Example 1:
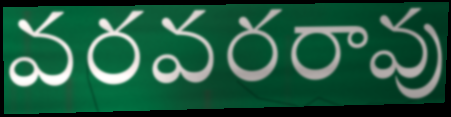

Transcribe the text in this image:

వరవరరావు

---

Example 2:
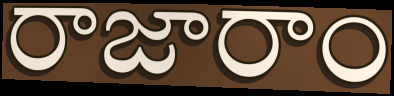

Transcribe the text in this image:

రాజారాం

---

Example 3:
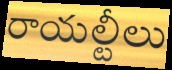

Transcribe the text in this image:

రాయల్టీలు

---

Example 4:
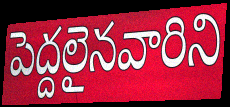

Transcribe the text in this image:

పెద్దలైనవారిని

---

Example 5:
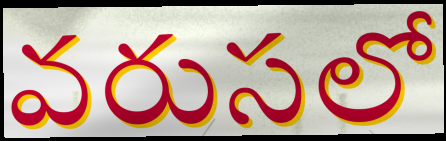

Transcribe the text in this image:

వరుసలో